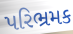
પરિભ્રમક